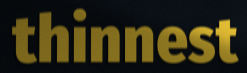
thinnest